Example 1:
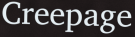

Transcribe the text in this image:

Creepage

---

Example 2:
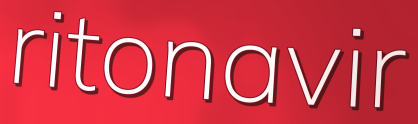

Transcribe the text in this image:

ritonavir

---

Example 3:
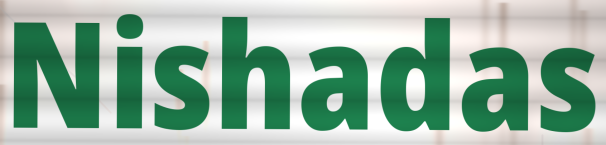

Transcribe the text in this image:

Nishadas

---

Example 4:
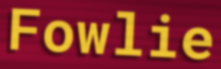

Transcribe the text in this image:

Fowlie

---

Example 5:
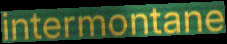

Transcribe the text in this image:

intermontane